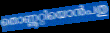
തൊണ്ണൂറ്റിയൊൻപതു